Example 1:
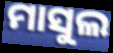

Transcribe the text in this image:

ମାସୁଲ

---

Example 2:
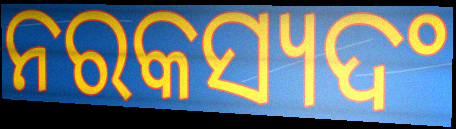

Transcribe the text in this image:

ନରକସ୍ୟଦଂ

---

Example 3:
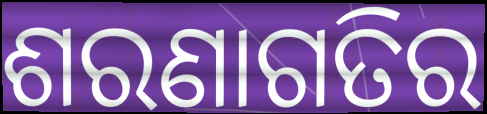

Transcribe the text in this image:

ଶରଣାଗତିର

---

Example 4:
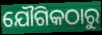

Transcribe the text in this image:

ଯୌଗିକଠାରୁ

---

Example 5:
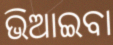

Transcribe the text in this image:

ଭିଆଇବା